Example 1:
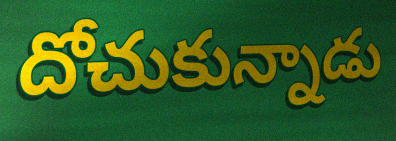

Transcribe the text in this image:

దోచుకున్నాడు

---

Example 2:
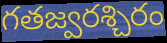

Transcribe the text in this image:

గతజ్వరశ్చిరం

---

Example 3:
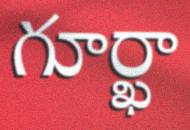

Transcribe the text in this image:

గూర్ఖా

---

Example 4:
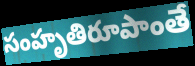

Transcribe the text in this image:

సంహృతిరూపాంతే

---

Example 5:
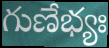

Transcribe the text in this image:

గుణేభ్యః